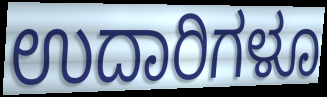
ಉದಾರಿಗಳೂ